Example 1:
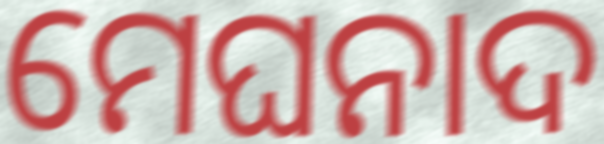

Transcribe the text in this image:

ମେଘନାଦ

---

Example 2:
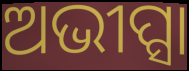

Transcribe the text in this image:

ଅଭୀପ୍ସା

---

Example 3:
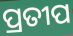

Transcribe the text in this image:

ପ୍ରତୀପ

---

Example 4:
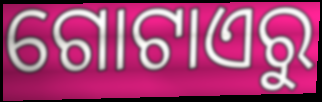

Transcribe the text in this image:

ଗୋଟାଏରୁ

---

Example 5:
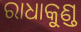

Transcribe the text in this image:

ରାଧାକୁଣ୍ଡ